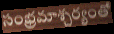
సంభ్రమాశ్చర్యంతో